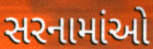
સરનામાંઓ